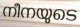
നീനയുടെ